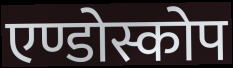
एण्डोस्कोप